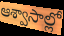
ఆశ్వాసాల్లో